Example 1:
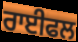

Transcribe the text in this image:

ਰਾਈਫਲ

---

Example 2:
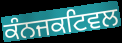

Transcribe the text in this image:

ਕੰਨਜਕਟਿਵਲ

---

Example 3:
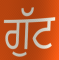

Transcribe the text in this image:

ਗੁੱਟ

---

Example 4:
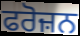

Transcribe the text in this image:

ਫਰੋਜ਼ਨ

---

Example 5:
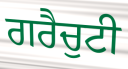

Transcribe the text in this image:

ਗਰੈਚੁਟੀ